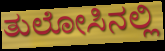
ತುಲೋಸಿನಲ್ಲಿ